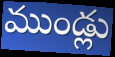
ముండ్లు